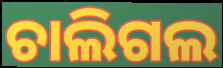
ଚାଲିଗଲ